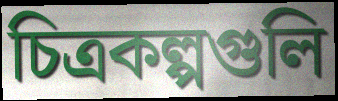
চিত্রকল্পগুলি